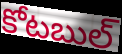
కోటబుల్